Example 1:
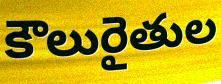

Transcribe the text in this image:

కౌలురైతుల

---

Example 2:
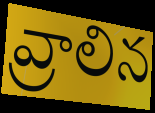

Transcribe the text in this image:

వ్రాలిన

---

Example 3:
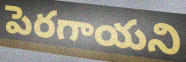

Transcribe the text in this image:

పెరగాయని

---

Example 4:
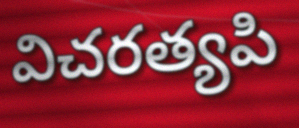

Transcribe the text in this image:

విచరత్యపి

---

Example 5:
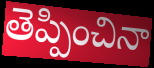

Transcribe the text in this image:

తెప్పించినా